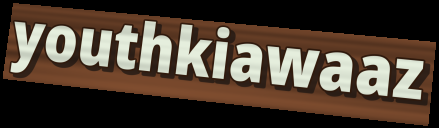
youthkiawaaz